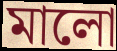
মালো